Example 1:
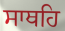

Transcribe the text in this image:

ਸਾਥਹਿ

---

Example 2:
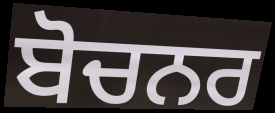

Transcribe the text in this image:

ਬੋਚਨਰ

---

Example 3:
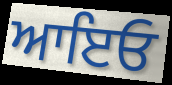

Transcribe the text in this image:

ਆਇਓ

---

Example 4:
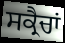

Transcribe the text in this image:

ਸਕ੍ਰੈਚਾਂ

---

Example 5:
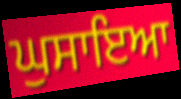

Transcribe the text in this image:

ਘੁਸਾਇਆ